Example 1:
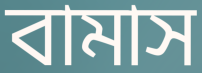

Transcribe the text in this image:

বামাস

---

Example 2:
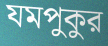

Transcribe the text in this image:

যমপুকুর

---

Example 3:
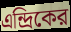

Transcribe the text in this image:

এন্দ্রিকের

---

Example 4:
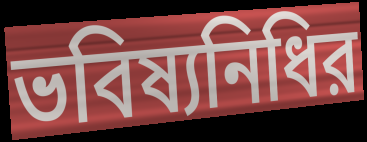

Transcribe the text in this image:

ভবিষ্যনিধির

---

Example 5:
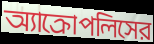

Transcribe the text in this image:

অ্যাক্রোপলিসের